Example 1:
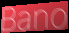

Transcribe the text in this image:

Bano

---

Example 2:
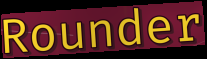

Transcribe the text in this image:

Rounder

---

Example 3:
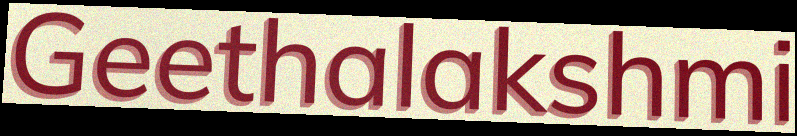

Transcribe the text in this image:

Geethalakshmi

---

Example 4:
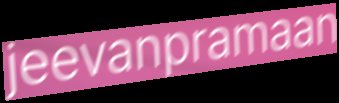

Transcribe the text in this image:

jeevanpramaan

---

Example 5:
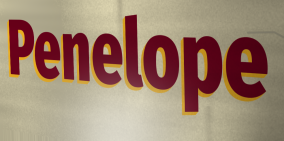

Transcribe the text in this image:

Penelope